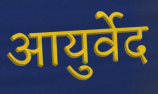
आयुर्वेद